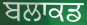
ਬਲਾਕਡ